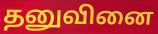
தனுவினை